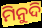
ମିନୁଦି